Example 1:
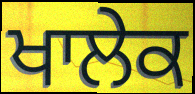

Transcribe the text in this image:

ਖਾਲੇਕ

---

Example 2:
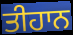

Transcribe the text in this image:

ਤੀਹਾਨ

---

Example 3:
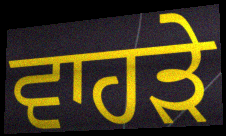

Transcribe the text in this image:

ਵਾਹੜੇ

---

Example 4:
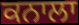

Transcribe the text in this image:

ਕਨਾਲਾ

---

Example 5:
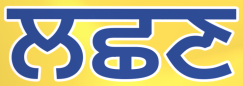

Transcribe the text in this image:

ਲਛਣ